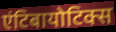
एंटिबायोटिक्स